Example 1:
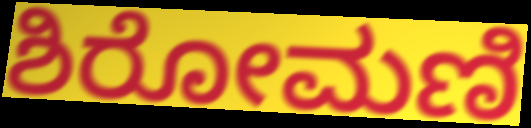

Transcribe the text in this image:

ಶಿರೋಮಣಿ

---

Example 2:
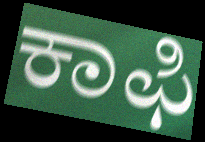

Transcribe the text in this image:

ಕಾಫಿ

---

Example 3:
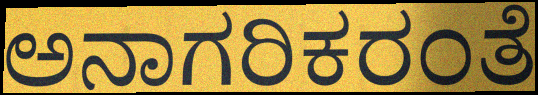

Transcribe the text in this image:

ಅನಾಗರಿಕರಂತೆ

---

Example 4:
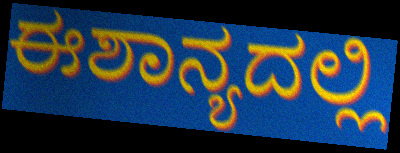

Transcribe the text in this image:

ಈಶಾನ್ಯದಲ್ಲಿ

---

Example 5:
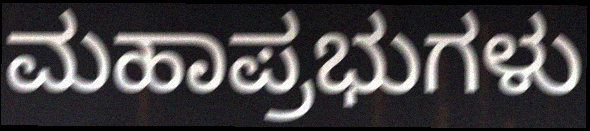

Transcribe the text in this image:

ಮಹಾಪ್ರಭುಗಳು